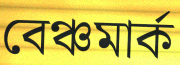
বেঞ্চমার্ক